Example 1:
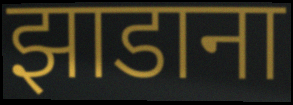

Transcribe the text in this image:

झाडाना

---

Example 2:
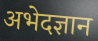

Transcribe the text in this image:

अभेदज्ञान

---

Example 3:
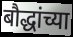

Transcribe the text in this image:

बौद्धांच्या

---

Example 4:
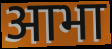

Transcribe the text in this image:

आभा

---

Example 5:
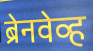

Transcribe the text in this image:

ब्रेनवेव्ह